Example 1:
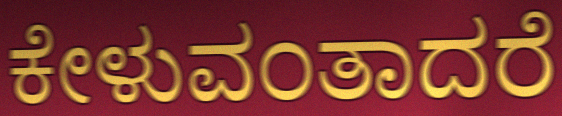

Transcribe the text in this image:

ಕೇಳುವಂತಾದರೆ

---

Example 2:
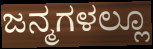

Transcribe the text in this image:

ಜನ್ಮಗಳಲ್ಲೂ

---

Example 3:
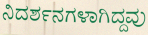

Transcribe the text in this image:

ನಿದರ್ಶನಗಳಾಗಿದ್ದವು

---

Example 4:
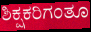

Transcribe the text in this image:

ಶಿಕ್ಷಕರಿಗಂತೂ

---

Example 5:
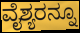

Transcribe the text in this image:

ವೈಶ್ಯರನ್ನೂ